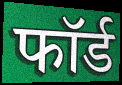
फॉर्ड